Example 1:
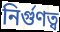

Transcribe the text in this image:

নির্গুণত্ব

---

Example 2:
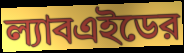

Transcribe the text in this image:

ল্যাবএইডের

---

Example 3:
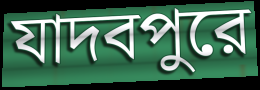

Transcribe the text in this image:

যাদবপুরে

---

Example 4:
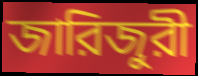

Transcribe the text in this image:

জারিজুরী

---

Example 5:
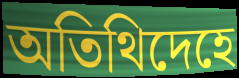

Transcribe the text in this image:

অতিথিদেহে